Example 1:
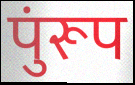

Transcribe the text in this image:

पुंरूप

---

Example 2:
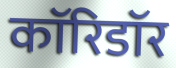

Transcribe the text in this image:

कॉरिडॉर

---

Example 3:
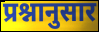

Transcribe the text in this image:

प्रश्नानुसार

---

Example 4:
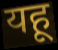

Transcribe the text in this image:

यहू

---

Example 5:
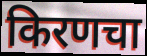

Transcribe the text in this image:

किरणचा